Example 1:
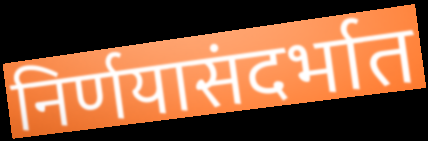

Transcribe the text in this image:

निर्णयासंदर्भात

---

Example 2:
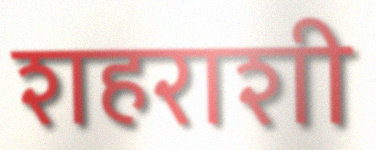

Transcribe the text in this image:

शहराशी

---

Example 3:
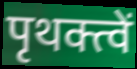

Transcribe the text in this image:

पृथक्त्वें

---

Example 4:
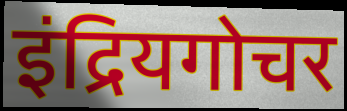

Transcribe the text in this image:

इंद्रियगोचर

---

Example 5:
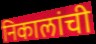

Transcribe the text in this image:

निकालांची